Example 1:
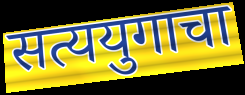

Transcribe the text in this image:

सत्ययुगाचा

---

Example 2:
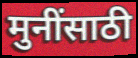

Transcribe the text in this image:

मुनींसाठी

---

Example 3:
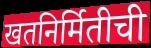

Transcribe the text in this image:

खतनिर्मितीची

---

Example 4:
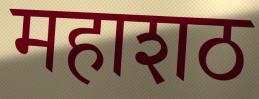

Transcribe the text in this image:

महाशठ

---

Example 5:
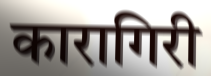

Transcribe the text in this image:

कारागिरी